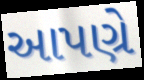
આપણ્રે